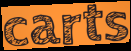
carts